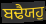
ਬਢੈਯਹੁ